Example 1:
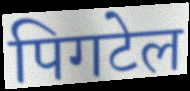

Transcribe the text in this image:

पिगटेल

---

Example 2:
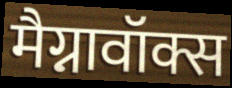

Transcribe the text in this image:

मैग्नावॉक्स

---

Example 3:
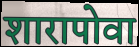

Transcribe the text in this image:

शारापोवा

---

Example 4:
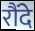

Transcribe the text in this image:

रौंदे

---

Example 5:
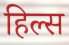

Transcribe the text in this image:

हिल्स